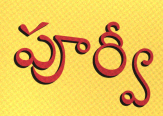
పూర్వీ